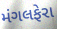
મંગલફેરા